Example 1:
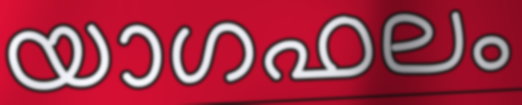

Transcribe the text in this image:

യാഗഫലം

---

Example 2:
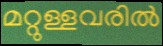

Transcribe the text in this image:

മറ്റുള്ളവരിൽ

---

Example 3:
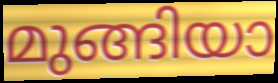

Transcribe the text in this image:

മുങ്ങിയാ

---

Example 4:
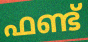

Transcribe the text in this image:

ഫണ്ട്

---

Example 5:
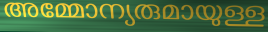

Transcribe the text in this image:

അമ്മോന്യരുമായുള്ള